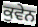
ਕੁਵੇਨ